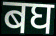
बघ